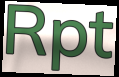
Rpt